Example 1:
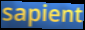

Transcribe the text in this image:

sapient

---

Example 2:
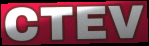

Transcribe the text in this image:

CTEV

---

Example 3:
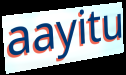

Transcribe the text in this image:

aayitu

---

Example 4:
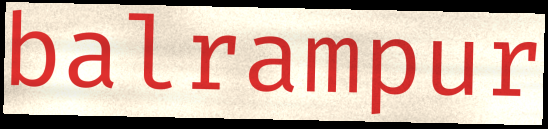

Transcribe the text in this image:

balrampur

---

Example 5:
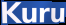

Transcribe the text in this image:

Kuru